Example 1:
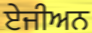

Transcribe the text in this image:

ਏਜੀਅਨ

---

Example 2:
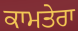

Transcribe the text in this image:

ਕਾਮਤੇਰਾ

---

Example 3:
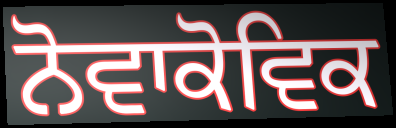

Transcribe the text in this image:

ਨੋਵਾਕੋਵਿਕ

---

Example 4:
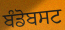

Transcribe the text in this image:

ਬੰਡੋਬਸਟ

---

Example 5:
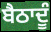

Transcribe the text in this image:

ਬੈਠਾਦੂੰ